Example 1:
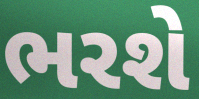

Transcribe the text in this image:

ભરશે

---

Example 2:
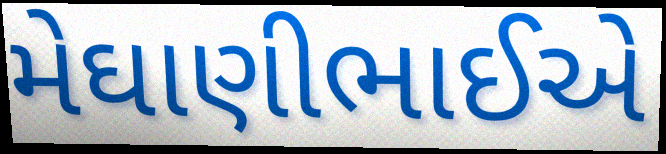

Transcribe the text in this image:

મેઘાણીભાઈએ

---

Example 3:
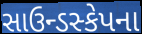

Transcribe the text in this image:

સાઉન્ડસ્કેપના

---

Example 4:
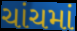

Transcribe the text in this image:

ચાંચમાં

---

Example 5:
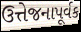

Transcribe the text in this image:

ઉત્તેજનાપૂર્વક